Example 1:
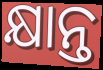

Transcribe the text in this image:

କ୍ଷାନ୍ତ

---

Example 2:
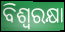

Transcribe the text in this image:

ବିଶ୍ୱରକ୍ଷା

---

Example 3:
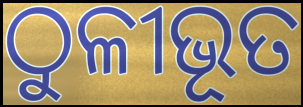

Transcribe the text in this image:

ଠୁଳୀଭୂତ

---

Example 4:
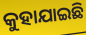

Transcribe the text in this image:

କୁହାଯାଇଛି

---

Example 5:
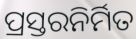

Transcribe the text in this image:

ପ୍ରସ୍ତରନିର୍ମିତ